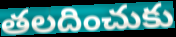
తలదించుకు